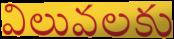
విలువలకు